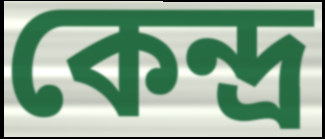
কেন্দ্র